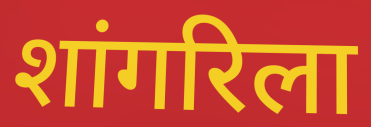
शांगरिला